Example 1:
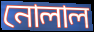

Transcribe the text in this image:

নোলাল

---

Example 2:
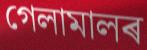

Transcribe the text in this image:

গেলামালৰ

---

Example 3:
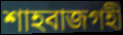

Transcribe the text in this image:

শাহবাজগহী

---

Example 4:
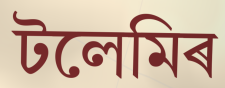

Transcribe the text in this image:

টলেমিৰ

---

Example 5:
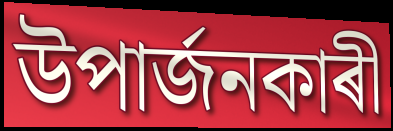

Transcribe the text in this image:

উপাৰ্জনকাৰী